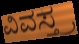
ವಿವಸ್ತ್ರ